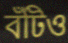
বঁটিও